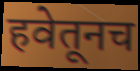
हवेतूनच